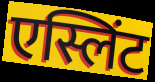
एस्लिंट